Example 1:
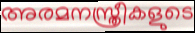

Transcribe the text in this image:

അരമനസ്ത്രീകളുടെ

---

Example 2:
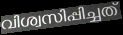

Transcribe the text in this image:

വിശ്വസിപ്പിച്ചത്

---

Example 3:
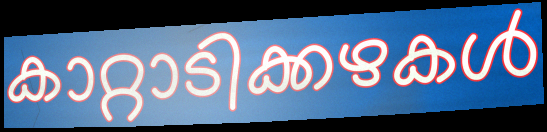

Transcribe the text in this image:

കാറ്റാടിക്കഴകൾ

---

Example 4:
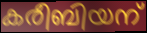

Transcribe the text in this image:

കരീബിയന്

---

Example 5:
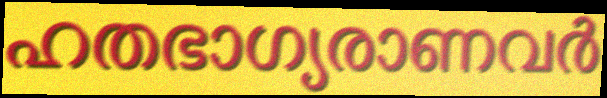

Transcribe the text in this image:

ഹതഭാഗ്യരാണവർ